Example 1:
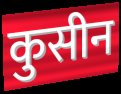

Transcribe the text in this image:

कुसीन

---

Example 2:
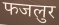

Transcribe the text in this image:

फजलुर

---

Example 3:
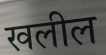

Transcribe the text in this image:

खलील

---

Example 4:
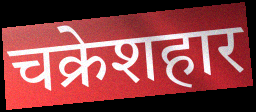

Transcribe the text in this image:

चक्रेशहार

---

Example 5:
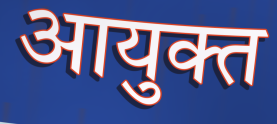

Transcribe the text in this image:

आयुक्‍त